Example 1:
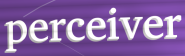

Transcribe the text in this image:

perceiver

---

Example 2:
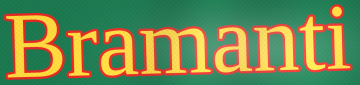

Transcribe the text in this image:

Bramanti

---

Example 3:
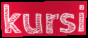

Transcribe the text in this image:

kursi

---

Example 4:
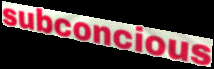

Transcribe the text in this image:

subconcious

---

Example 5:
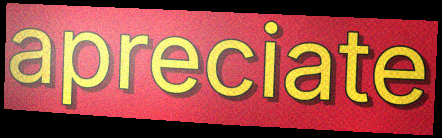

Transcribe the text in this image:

apreciate